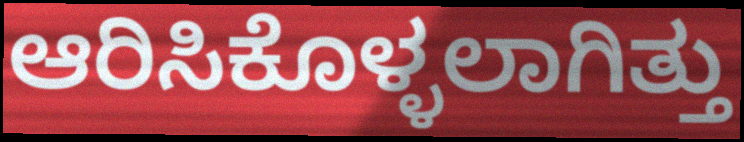
ಆರಿಸಿಕೊಳ್ಳಲಾಗಿತ್ತು